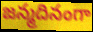
జన్మదినంగా